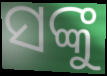
ସଙ୍କୁ